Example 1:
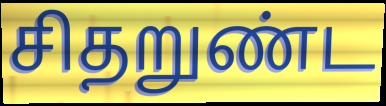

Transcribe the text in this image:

சிதறுண்ட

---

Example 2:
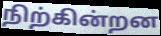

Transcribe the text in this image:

நிற்கின்றன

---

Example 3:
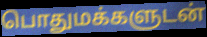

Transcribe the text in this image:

பொதுமக்களுடன்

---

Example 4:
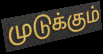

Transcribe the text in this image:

முடுக்கும்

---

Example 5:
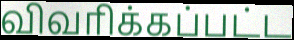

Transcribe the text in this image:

விவரிக்கப்பட்ட